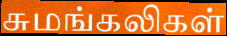
சுமங்கலிகள்